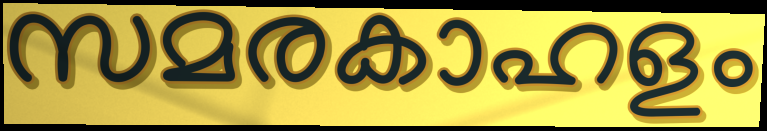
സമരകാഹളം